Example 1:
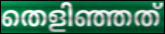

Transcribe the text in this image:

തെളിഞ്ഞത്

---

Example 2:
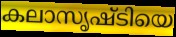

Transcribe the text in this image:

കലാസൃഷ്ടിയെ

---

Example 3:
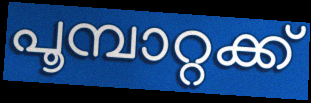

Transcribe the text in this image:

പൂമ്പാറ്റക്ക്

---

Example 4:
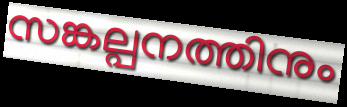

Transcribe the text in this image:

സങ്കല്പനത്തിനും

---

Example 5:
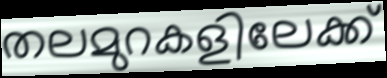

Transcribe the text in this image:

തലമുറകളിലേക്ക്